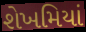
શેખમિયાં